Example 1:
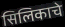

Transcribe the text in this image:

सिलिकाचे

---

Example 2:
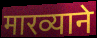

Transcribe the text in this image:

मारव्याने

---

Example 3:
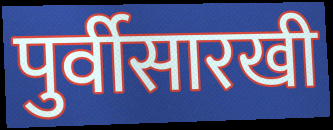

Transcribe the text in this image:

पुर्वीसारखी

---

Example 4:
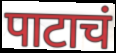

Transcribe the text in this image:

पाटाचं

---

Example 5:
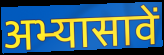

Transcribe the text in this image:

अभ्यासावें